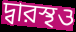
দ্বারস্থও